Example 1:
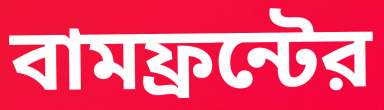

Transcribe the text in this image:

বামফ্রন্টের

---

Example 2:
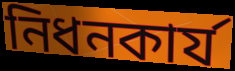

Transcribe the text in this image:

নিধনকার্য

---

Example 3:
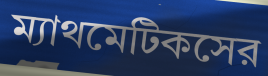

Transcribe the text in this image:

ম্যাথমেটিকসের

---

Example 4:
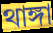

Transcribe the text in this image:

থাঙ্গা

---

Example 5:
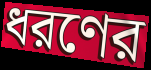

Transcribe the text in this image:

ধরণের